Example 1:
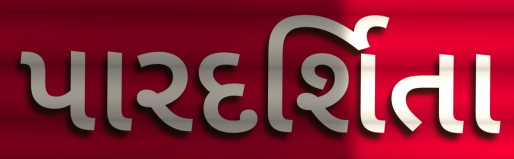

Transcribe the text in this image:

પારદર્શિતા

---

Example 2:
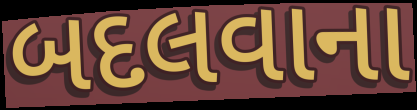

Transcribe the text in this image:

બદલવાના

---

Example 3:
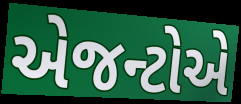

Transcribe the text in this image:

એજન્ટોએ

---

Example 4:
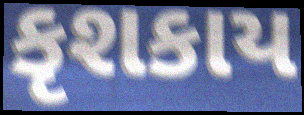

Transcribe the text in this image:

કૃશકાય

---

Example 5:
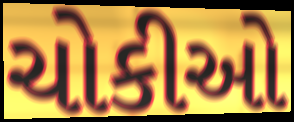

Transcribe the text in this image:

ચોકીઓ